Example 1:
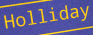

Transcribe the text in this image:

Holliday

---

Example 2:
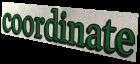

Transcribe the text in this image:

coordinate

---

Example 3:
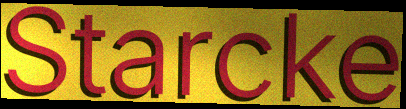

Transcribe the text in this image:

Starcke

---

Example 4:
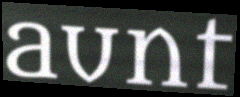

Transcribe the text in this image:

aunt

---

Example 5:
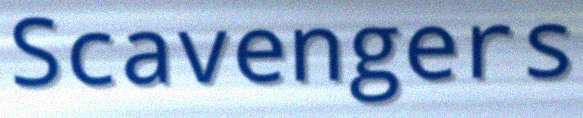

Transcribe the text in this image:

Scavengers